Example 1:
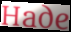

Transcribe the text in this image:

Hade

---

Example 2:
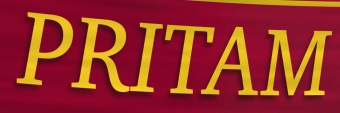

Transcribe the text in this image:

PRITAM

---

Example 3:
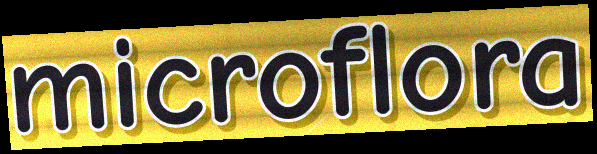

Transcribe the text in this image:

microflora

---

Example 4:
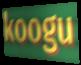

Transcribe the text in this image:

koogu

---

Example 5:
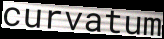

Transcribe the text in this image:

curvatum